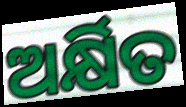
ଅର୍କ୍ଷିତ